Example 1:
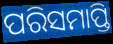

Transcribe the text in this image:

ପରିସମାପ୍ତି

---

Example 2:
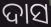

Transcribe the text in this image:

ଦାସ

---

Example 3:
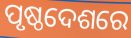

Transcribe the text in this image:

ପୃଷ୍ଠଦେଶରେ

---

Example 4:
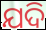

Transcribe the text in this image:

ଯଦି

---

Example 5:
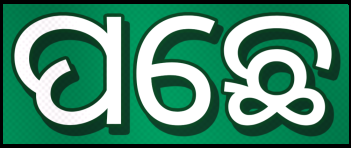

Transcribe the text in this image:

ପଛେ